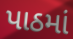
પાઠમાં